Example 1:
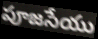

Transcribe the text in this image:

పూజసేయు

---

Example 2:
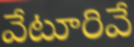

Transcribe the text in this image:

వేటూరివే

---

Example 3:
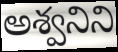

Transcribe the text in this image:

అశ్వనిని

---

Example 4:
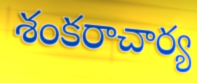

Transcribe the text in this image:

శంకరాచార్య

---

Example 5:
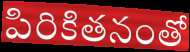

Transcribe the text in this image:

పిరికితనంతో